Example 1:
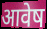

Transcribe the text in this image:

आवेष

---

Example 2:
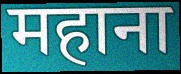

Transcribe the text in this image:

महाना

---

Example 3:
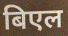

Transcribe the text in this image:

बिएल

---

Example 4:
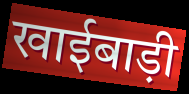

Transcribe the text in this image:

खाईबाड़ी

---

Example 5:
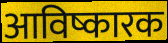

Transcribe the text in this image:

आविष्कारक